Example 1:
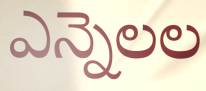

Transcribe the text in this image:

ఎన్నెలల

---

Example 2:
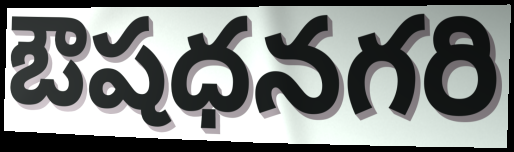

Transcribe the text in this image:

ఔషధనగరి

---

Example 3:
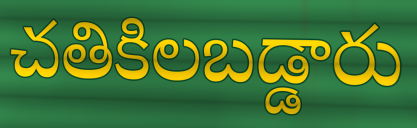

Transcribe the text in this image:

చతికిలబడ్డారు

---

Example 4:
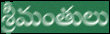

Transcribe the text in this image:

శ్రీమంతులు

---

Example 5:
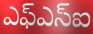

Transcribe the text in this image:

ఎఫ్ఎస్ఐ